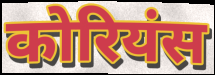
कोरियंस